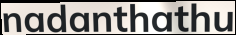
nadanthathu